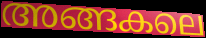
അങ്ങകലെ